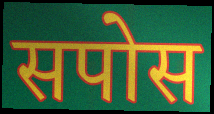
सपोस